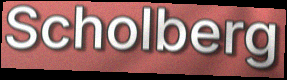
Scholberg